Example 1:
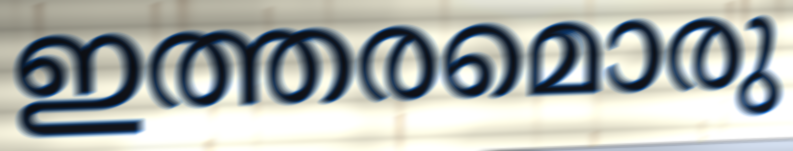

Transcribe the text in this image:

ഇത്തരമൊരു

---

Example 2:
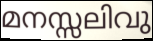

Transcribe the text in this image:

മനസ്സലിവു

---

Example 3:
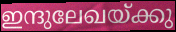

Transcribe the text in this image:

ഇന്ദുലേഖയ്ക്കു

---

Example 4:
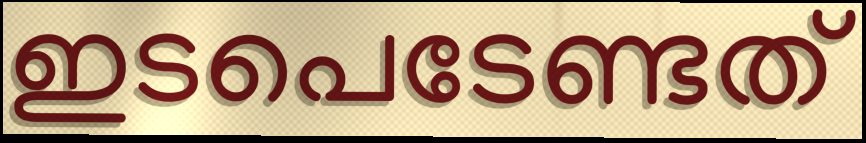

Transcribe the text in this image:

ഇടപെടേണ്ടത്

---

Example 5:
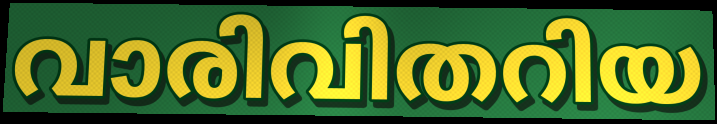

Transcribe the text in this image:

വാരിവിതറിയ